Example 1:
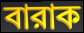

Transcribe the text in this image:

বারাক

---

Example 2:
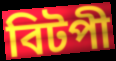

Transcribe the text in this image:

বিটপী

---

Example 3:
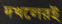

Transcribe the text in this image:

দখলেরই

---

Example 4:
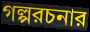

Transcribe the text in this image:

গল্পরচনার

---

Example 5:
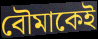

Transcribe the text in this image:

বৌমাকেই